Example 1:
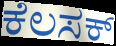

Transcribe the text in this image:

ಕೆಲಸಕ್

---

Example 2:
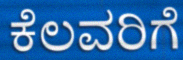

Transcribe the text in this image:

ಕೆಲವರಿಗೆ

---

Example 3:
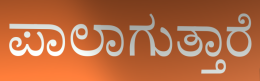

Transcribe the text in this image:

ಪಾಲಾಗುತ್ತಾರೆ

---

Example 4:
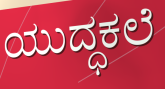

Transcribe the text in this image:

ಯುದ್ಧಕಲೆ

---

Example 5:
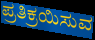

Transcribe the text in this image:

ಪ್ರತಿಕ್ರಯಿಸುವ